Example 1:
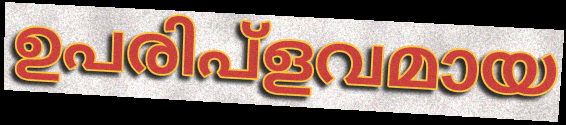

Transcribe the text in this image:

ഉപരിപ്ളവമായ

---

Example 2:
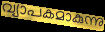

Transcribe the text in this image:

വ്യാപകമാകുന്നു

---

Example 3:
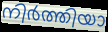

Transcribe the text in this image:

നിർത്തിയാ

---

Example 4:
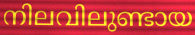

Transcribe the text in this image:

നിലവിലുണ്ടായ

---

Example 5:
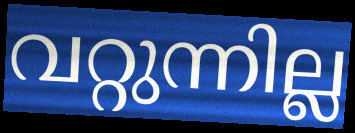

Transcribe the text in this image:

വറ്റുന്നില്ല